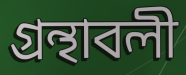
গ্রন্থাবলী